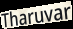
Tharuvar